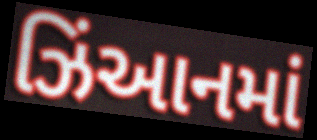
ઝિંઆનમાં